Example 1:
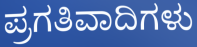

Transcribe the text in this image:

ಪ್ರಗತಿವಾದಿಗಳು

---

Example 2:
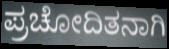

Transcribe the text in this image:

ಪ್ರಚೋದಿತನಾಗಿ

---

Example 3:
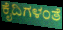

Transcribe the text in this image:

ಕೈದಿಗಳಂತೆ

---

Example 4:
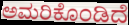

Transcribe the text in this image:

ಅಮರಿಕೊಂಡಿದೆ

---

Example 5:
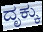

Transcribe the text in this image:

ದೃಕ್ಕು